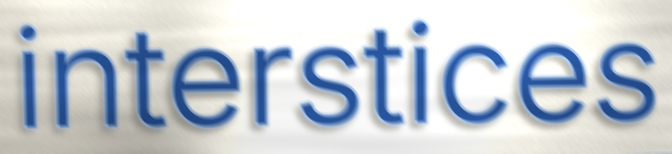
interstices